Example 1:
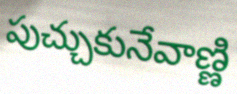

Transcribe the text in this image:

పుచ్చుకునేవాణ్ణి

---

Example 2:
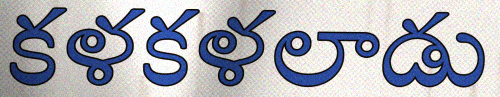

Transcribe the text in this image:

కళకళలాడు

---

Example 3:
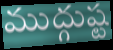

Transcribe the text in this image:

ముద్గుష్ట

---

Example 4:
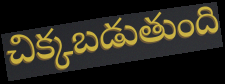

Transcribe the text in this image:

చిక్కబడుతుంది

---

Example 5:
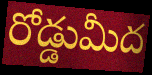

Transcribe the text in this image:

రోడ్డుమీద